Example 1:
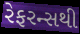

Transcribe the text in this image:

રેફરન્સથી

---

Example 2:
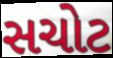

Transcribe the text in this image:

સચોટ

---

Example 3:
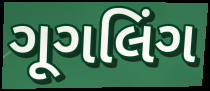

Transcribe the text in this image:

ગૂગલિંગ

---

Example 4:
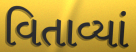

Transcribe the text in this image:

વિતાવ્યાં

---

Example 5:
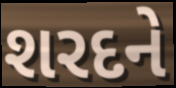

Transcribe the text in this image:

શરદને